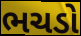
ભચડો